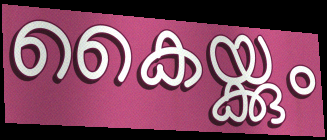
കൈയ്ക്കും